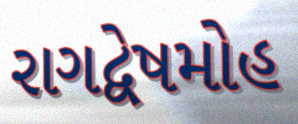
રાગદ્વેષમોહ